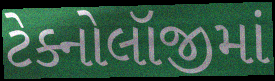
ટેક્નોલૉજીમાં